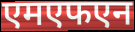
एमएफएन